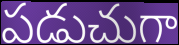
పడుచుగా